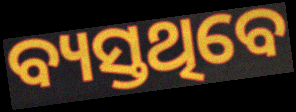
ବ୍ୟସ୍ତଥିବେ